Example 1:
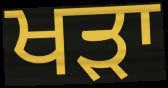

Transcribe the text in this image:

ਖਡ਼ਾ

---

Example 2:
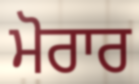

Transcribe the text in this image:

ਮੋਰਾਰ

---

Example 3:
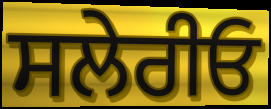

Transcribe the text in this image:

ਸਲੇਰੀਓ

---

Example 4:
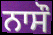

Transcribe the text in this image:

ਨਾਸੌ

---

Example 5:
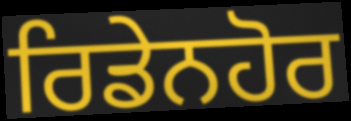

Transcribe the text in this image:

ਰਿਡੇਨਹੋਰ